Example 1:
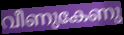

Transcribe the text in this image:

വീണുകേണു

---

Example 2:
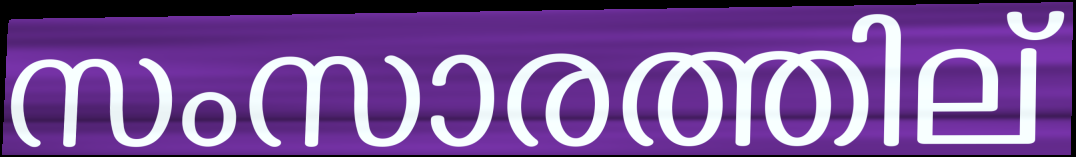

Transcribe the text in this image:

സംസാരത്തില്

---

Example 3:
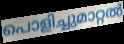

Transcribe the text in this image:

പൊളിച്ചുമാറ്റൽ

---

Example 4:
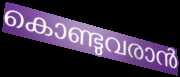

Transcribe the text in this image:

കൊണ്ടുവരാൻ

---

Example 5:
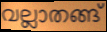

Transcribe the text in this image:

വല്ലാതങ്ങ്